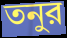
তনুর